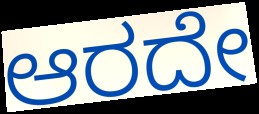
ಆರದೇ